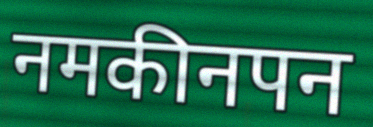
नमकीनपन